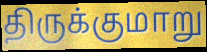
திருக்குமாறு